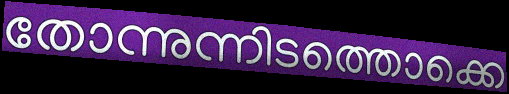
തോന്നുന്നിടത്തൊക്കെ